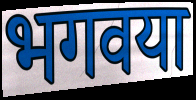
भगवया